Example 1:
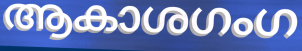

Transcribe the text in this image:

ആകാശഗംഗ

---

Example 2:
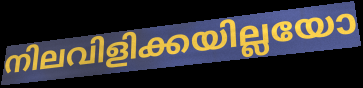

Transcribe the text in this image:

നിലവിളിക്കയില്ലയോ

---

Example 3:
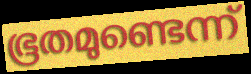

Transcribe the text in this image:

ഭൂതമുണ്ടെന്ന്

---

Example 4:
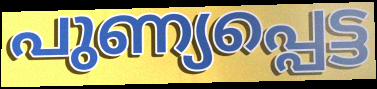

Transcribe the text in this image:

പുണ്യപ്പെട്ട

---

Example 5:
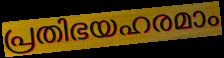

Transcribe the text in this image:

പ്രതിഭയഹരമാം